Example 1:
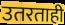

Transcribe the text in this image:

उतरताही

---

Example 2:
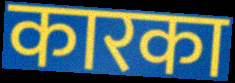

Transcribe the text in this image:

कारका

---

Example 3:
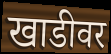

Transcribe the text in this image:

खाडीवर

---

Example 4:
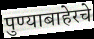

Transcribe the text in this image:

पुण्याबाहेरचे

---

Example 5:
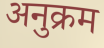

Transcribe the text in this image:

अनुक्रम